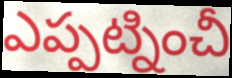
ఎప్పట్నించీ